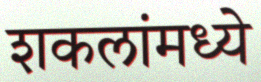
शकलांमध्ये